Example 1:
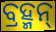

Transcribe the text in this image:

ବ୍ରହ୍ମନ୍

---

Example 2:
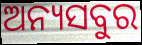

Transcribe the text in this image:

ଅନ୍ୟସବୁର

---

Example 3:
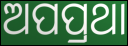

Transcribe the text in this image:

ଅପପ୍ରଥା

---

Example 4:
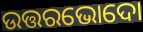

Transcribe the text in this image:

ଉତ୍ତରଭୋଦୋ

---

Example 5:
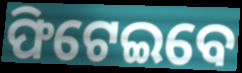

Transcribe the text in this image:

ଫିଟେଇବେ